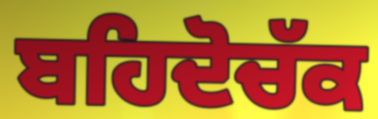
ਬਹਿਦੋਚੱਕ